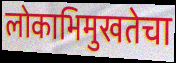
लोकाभिमुखतेचा